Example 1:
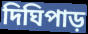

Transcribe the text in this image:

দিঘিপাড়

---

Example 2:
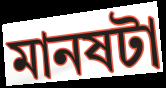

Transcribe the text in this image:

মানষটা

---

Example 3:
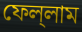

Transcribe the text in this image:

ফেল্‌লাম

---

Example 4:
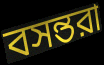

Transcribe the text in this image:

বসন্তরা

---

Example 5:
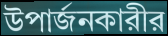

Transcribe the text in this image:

উপার্জনকারীর